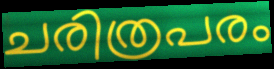
ചരിത്രപരം